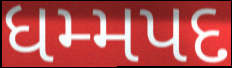
ધમ્મપદ